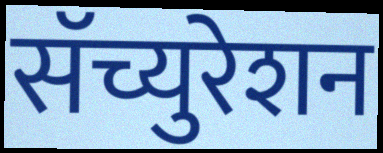
सॅच्युरेशन